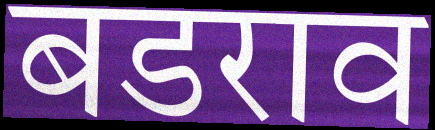
बडराव